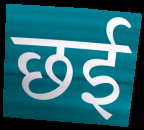
छई